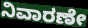
ನಿವಾರಣೇ